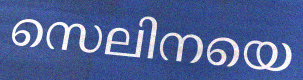
സെലിനയെ